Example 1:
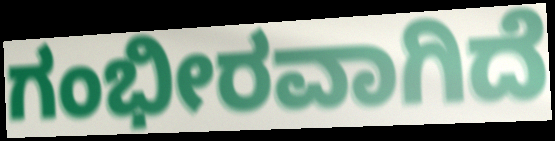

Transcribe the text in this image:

ಗಂಭೀರವಾಗಿದೆ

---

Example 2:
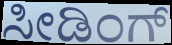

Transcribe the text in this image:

ಸೀಡಿಂಗ್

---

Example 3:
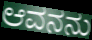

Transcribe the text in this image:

ಆವನನು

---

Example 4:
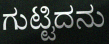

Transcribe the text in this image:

ಗುಟ್ಟಿದನು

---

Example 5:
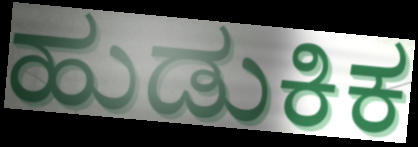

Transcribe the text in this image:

ಹುಡುಕಿಕ